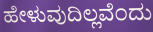
ಹೇಳುವುದಿಲ್ಲವೆಂದು